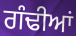
ਗੰਢੀਆਂ